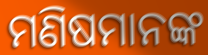
ମଣିଷମାନଙ୍କ